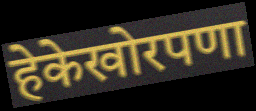
हेकेखोरपणा